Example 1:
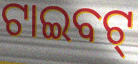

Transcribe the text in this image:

ଟାଇବଟ୍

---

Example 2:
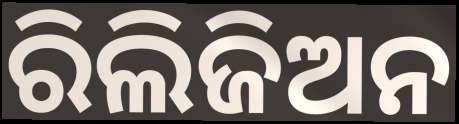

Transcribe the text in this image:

ରିଲିଜିଅନ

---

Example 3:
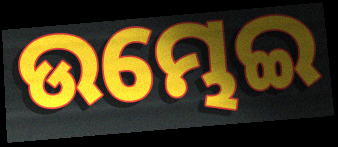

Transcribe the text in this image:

ଉମ୍ଭେଇ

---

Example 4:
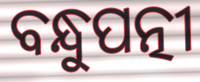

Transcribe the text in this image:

ବନ୍ଧୁପତ୍ନୀ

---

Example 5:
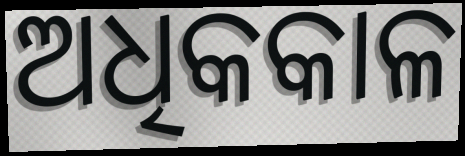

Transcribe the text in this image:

ଅଧିକକାଳ